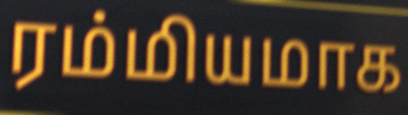
ரம்மியமாக